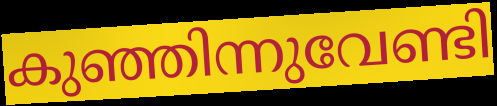
കുഞ്ഞിന്നുവേണ്ടി